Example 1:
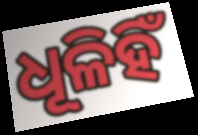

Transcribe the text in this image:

ଧୂଳିହିଁ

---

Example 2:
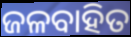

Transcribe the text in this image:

ଜଳବାହିତ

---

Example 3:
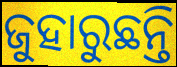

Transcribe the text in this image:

ଜୁହାରୁଛନ୍ତି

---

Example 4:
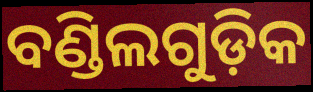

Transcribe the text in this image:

ବଣ୍ଡିଲଗୁଡ଼ିକ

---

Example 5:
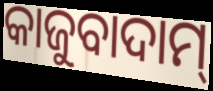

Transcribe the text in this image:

କାଜୁବାଦାମ୍